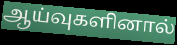
ஆய்வுகளினால்